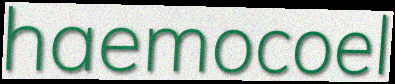
haemocoel